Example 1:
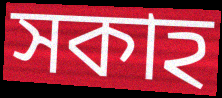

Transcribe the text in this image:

সকাহ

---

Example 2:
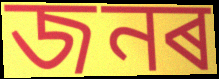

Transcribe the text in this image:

জনৰ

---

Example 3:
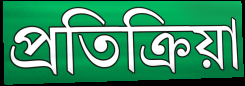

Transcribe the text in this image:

প্ৰতিক্ৰিয়া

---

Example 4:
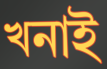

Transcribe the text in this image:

খনাই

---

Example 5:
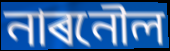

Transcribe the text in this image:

নাৰনৌল